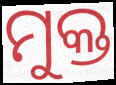
ମୁକ୍ତ